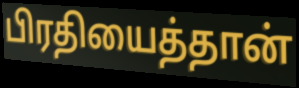
பிரதியைத்தான்